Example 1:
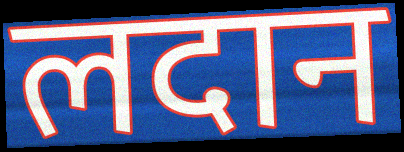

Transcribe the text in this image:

लदान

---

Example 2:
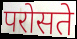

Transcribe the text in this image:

परोसते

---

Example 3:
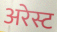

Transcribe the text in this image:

अरेस्ट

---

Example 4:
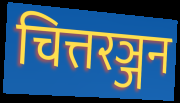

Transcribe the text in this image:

चित्तरञ्जन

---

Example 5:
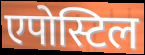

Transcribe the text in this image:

एपोस्टिल